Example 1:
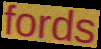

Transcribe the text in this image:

fords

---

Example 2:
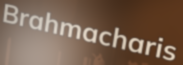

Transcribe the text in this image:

Brahmacharis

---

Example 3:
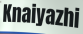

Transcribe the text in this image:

Knaiyazhi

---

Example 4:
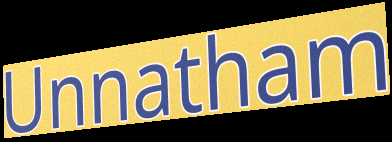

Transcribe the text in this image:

Unnatham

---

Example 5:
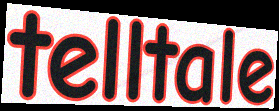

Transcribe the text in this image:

telltale